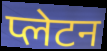
प्लेटन